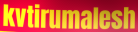
kvtirumalesh